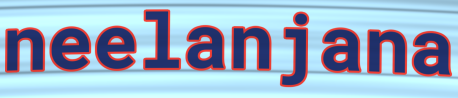
neelanjana